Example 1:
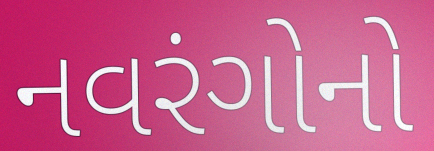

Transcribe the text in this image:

નવરંગોનો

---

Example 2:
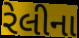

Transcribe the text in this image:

રેલીના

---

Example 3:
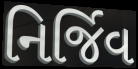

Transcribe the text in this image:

નિર્જિવ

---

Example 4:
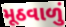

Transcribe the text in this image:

મૂઠવાળું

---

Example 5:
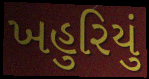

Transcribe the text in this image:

ખહુરિયું